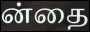
ன்தை